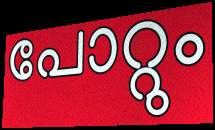
പോറ്റും